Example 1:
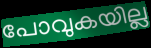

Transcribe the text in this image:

പോവുകയില്ല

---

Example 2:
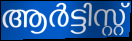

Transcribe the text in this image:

ആർട്ടിസ്റ്റ്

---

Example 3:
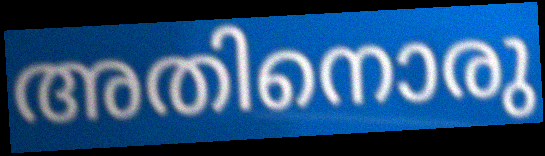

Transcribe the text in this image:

അതിനൊരു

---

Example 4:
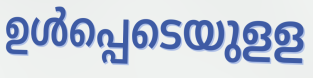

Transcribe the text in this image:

ഉൾപ്പെടെയുളള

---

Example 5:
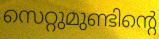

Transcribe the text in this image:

സെറ്റുമുണ്ടിന്റെ